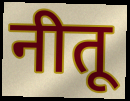
नीतू